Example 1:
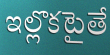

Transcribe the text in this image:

ఇల్లొకటైతే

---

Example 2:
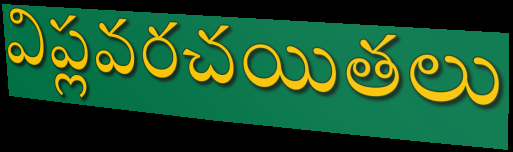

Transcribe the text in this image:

విప్లవరచయితలు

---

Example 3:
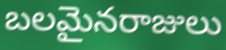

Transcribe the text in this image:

బలమైనరాజులు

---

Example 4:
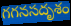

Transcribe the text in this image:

గగనసదృశం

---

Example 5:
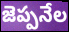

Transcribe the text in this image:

జెప్పనేల